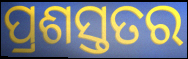
ପ୍ରଶସ୍ତତର